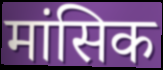
मांसिक